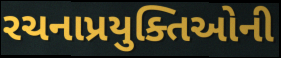
રચનાપ્રયુક્તિઓની